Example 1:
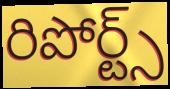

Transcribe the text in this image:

రిపోర్ట్స్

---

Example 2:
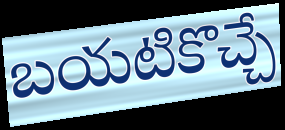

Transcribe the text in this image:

బయటికొచ్చే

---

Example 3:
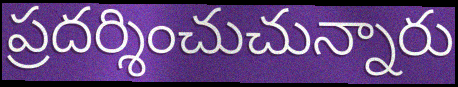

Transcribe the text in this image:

ప్రదర్శించుచున్నారు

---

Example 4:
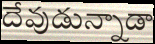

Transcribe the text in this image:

దేవుడున్నాడా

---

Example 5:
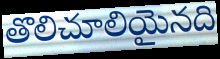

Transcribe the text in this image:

తొలిచూలియైనది